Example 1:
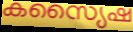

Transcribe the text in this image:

കസ്യൈഷ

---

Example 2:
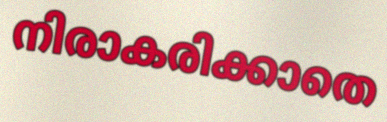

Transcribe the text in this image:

നിരാകരിക്കാതെ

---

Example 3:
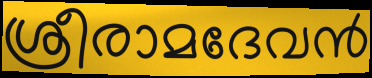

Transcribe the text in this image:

ശ്രീരാമദേവൻ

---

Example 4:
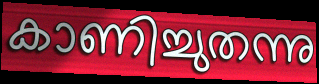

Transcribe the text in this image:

കാണിച്ചുതന്നു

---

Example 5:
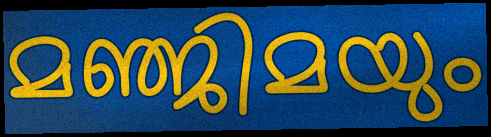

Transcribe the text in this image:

മഞ്ജിമയും